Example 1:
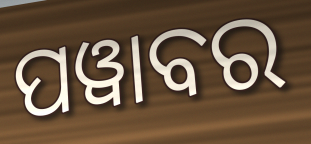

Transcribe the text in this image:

ପୱାବର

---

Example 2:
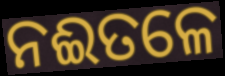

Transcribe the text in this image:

ନଈତଳେ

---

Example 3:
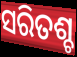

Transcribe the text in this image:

ସରିତଶ୍ଚ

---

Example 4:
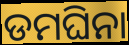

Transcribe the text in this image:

ଡମଘିନା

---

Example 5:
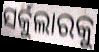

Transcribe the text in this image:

ସର୍କୁଲାରକୁ